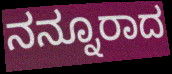
ನನ್ನೂರಾದ